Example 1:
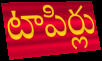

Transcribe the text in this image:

టాపిర్లు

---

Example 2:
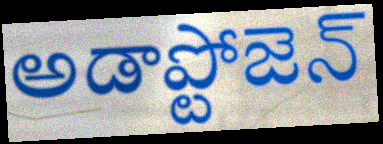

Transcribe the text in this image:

అడాప్టోజెన్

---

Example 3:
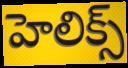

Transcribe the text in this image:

హెలిక్స్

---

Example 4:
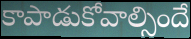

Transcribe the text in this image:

కాపాడుకోవాల్సిందే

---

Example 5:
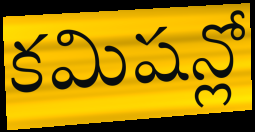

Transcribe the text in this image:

కమిషన్లో